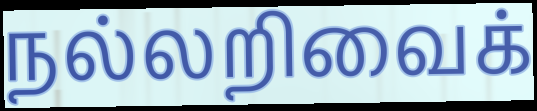
நல்லறிவைக்